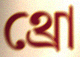
থ্রো